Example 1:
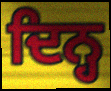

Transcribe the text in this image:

ਦਿਨ੍ਹ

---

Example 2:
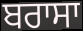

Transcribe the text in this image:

ਬਰਾਸਾ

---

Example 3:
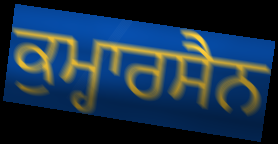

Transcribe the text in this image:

ਕੁਮ੍ਹਾਰਸੈਨ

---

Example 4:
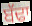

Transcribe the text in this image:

ਬੱਢਾ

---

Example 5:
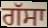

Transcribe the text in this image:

ਗੱਸਾ